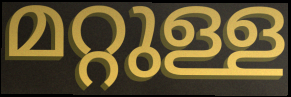
മറ്റുള്ള